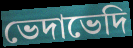
ভেদাভেদি